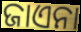
ଜାଏନା